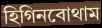
হিগিনবোথাম